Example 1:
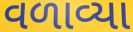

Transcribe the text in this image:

વળાવ્યા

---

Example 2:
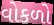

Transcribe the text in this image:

વોકળો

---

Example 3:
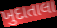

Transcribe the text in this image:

ખુદાતાલા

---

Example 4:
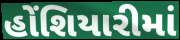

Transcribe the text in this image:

હોંશિયારીમાં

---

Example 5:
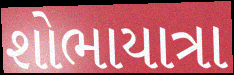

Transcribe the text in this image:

શોભાયાત્રા